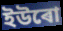
ইউৰো